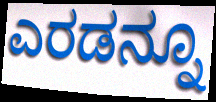
ಎರಡನ್ನೂ